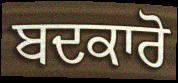
ਬਦਕਾਰੋ